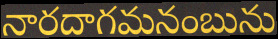
నారదాగమనంబును